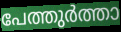
പേത്തുർത്താ